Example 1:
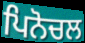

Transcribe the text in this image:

ਪਿਨੋਚਲ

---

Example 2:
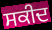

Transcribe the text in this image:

ਸਕੀਦ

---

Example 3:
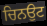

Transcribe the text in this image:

ਚਿਨਉਟ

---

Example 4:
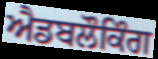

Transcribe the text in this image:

ਐਡਬਲੌਕਿੰਗ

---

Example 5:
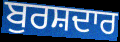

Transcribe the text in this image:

ਬੁਰਸ਼ਦਾਰ